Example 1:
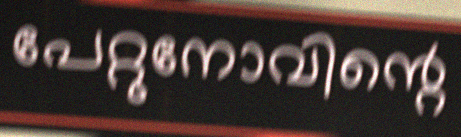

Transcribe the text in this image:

പേറ്റുനോവിന്റെ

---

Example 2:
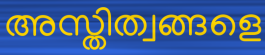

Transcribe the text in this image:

അസ്തിത്വങ്ങളെ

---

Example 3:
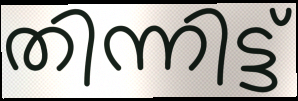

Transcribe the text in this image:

തിന്നിട്ട്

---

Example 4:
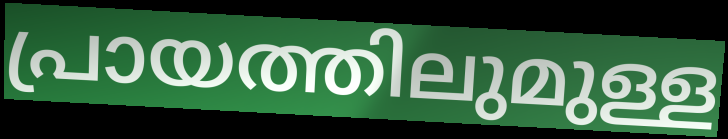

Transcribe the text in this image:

പ്രായത്തിലുമുള്ള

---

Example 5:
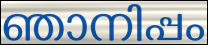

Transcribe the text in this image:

ഞാനിപ്പം